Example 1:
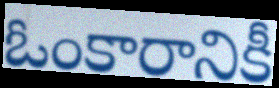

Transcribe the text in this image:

ఓంకారానికీ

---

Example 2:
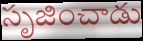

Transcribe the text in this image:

సృజించాడు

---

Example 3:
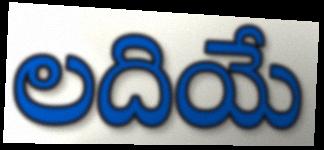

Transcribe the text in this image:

లదియే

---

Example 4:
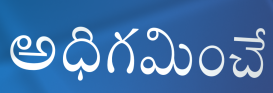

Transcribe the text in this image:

అధిగమించే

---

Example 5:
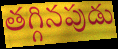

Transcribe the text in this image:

తగ్గినపుడు